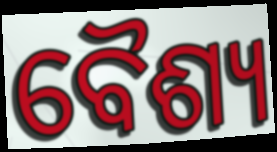
ବୈଶ୍ୟ